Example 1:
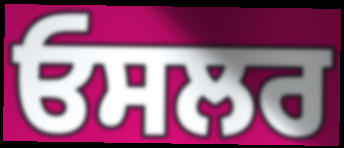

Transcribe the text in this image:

ਓਸਲਰ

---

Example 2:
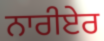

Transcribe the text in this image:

ਨਾਰੀਏਰ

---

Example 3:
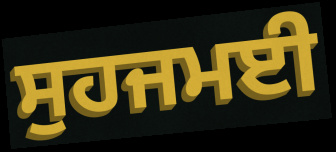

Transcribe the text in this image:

ਸੁਹਜਮਈ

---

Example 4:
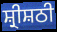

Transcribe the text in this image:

ਸ਼੍ਰੀਸ਼ਠੀ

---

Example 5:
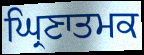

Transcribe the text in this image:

ਘ੍ਰਿਣਾਤਮਕ